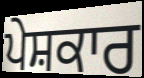
ਪੇਸ਼ਕਾਰ